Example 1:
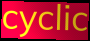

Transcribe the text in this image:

cyclic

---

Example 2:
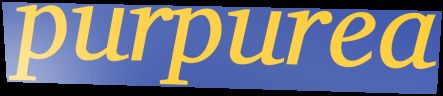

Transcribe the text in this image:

purpurea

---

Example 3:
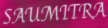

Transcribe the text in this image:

SAUMITRA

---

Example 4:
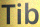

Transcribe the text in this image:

Tib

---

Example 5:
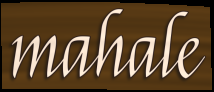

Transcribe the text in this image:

mahale